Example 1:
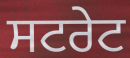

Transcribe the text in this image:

ਸਟਰੇਟ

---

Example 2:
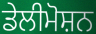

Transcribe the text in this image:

ਡੇਲੀਮੋਸ਼ਨ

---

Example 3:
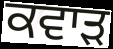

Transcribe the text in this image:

ਕਵਾੜ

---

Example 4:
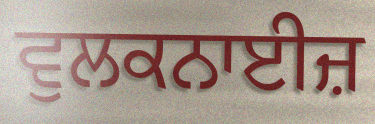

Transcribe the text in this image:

ਵੁਲਕਨਾਈਜ਼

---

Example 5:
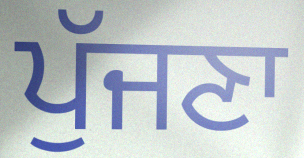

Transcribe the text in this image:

ਪੁੱਜਣਾ